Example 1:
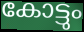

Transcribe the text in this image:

കോട്ടും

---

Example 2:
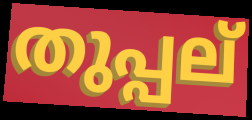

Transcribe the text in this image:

തുപ്പല്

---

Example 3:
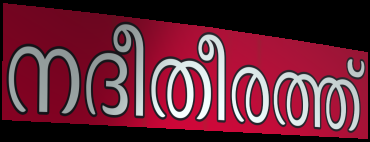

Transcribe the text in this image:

നദീതീരത്ത്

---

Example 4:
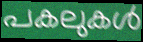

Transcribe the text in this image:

പകലുകൾ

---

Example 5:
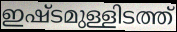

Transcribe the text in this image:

ഇഷ്ടമുള്ളിടത്ത്